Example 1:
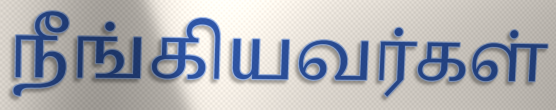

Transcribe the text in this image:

நீங்கியவர்கள்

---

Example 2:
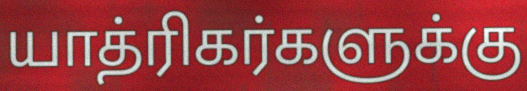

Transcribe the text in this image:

யாத்ரிகர்களுக்கு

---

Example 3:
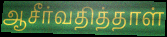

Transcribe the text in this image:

ஆசீர்வதித்தாள்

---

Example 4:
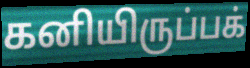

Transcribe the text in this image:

கனியிருப்பக்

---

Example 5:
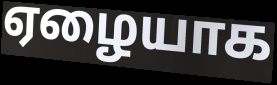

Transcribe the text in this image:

ஏழையாக